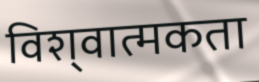
विश्वात्मकता